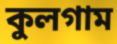
কুলগাম